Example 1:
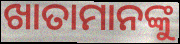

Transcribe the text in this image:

ଖାତାମାନଙ୍କୁ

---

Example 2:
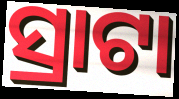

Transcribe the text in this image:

ସ୍ରାଟା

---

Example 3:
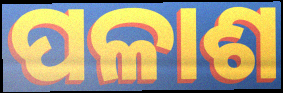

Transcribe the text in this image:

ପଳାଶ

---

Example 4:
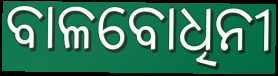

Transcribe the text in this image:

ବାଳବୋଧିନୀ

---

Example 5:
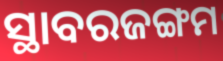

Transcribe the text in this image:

ସ୍ଥାବରଜଙ୍ଗମ